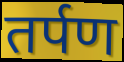
तर्पण